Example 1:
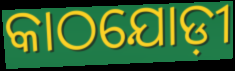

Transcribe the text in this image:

କାଠଯୋଡ଼ୀ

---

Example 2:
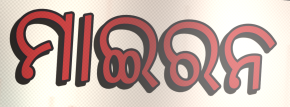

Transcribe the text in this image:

ମାଇରନ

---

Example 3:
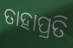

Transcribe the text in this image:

ତାହାପ୍ରତି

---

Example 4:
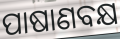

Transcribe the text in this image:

ପାଷାଣବକ୍ଷ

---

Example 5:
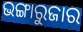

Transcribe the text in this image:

ଭଙ୍ଗାରୁଜାର